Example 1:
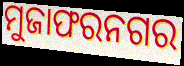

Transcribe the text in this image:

ମୁଜାଫରନଗର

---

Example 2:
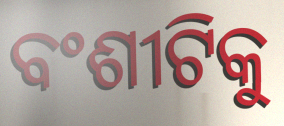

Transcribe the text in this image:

ବଂଶୀଟିକୁ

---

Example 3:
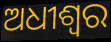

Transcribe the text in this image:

ଅଧୀଶ୍ୱର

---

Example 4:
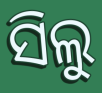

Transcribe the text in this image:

ସିଲୁ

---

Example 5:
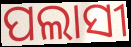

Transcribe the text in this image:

ପଲାସୀ